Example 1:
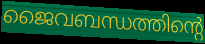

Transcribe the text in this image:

ജൈവബന്ധത്തിന്റെ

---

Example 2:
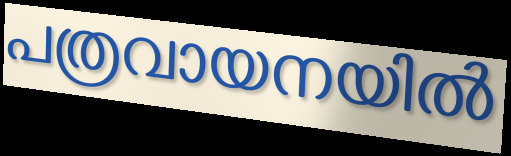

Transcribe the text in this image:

പത്രവായനയിൽ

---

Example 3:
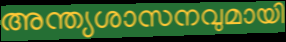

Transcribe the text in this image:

അന്ത്യശാസനവുമായി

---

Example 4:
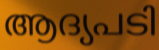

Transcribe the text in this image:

ആദ്യപടി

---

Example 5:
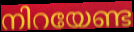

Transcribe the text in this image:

നിറയേണ്ട